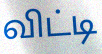
விட்டி